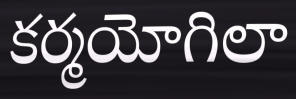
కర్మయోగిలా